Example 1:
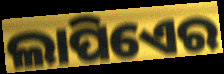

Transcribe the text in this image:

ଲାପିଏେର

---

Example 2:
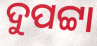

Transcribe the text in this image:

ଦୁପଟ୍ଟା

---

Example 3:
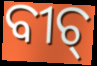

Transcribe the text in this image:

ବୀଚ୍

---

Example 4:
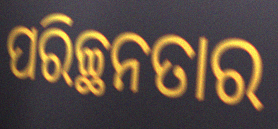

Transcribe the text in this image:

ପରିଚ୍ଛନତାର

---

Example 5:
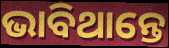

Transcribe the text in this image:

ଭାବିଥାନ୍ତେ